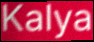
Kalya